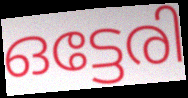
ഒട്ടേരി